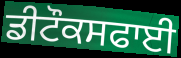
ਡੀਟੌਕਸਫਾਈ